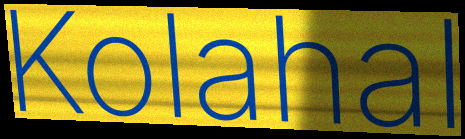
Kolahal